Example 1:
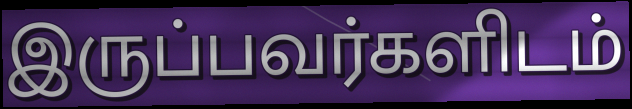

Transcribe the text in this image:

இருப்பவர்களிடம்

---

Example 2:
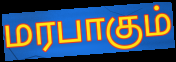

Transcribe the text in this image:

மரபாகும்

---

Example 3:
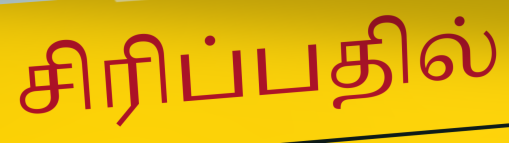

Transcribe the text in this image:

சிரிப்பதில்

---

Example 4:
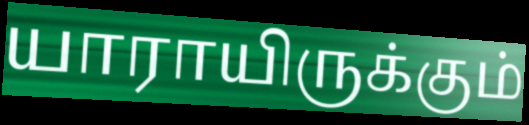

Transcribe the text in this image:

யாராயிருக்கும்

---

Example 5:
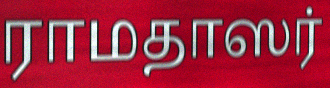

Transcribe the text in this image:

ராமதாஸர்